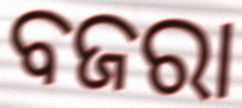
ବଜରା